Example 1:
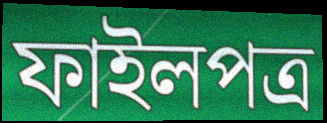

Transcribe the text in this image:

ফাইলপত্র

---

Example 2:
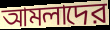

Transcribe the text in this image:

আমলাদের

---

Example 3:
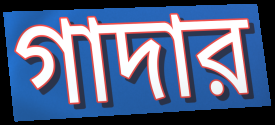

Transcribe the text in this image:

গাদার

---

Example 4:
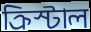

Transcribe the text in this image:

ক্রিস্টাল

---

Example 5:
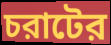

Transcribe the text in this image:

চরাটের